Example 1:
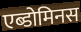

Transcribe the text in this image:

एब्डोमिनस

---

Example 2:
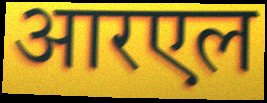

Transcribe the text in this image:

आरएल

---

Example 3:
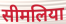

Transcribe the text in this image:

सीमलिया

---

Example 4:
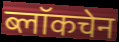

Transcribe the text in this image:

ब्लॉकचेन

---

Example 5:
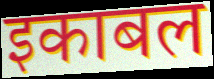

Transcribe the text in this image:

इकाबल